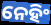
ନେହିଂ